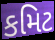
કમિટ